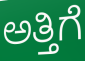
ಅತ್ತಿಗೆ